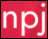
npj